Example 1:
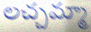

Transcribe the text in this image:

లచ్చమ్మా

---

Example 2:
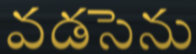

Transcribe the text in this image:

వడసెను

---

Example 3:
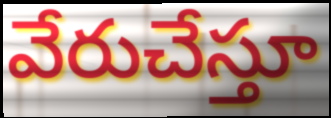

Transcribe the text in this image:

వేరుచేస్తూ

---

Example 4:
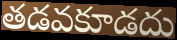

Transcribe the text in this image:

తడవకూడదు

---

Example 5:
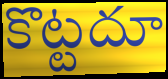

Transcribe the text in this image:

కొట్టదూ